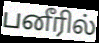
பனீரில்